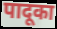
पादूका